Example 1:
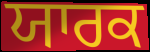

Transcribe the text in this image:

ਯਾਰਕ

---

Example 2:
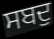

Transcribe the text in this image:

ਸਬਦੁ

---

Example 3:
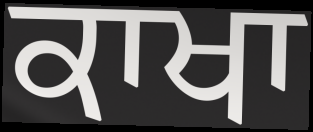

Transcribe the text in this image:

ਕਾਖਾ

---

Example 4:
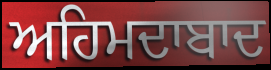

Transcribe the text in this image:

ਅਹਿਮਦਾਬਾਦ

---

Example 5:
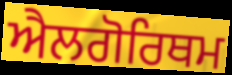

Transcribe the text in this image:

ਐਲਗੋਰਿਥਮ